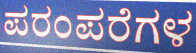
ಪರಂಪರೆಗಳ